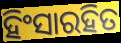
ହିଂସାରହିତ